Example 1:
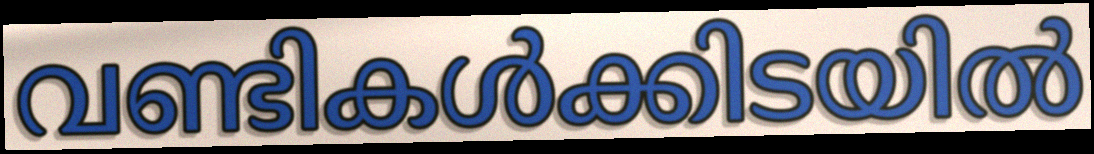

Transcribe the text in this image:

വണ്ടികൾക്കിടയിൽ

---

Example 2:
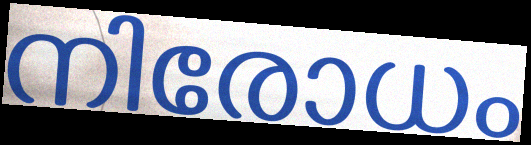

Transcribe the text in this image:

നിരോധം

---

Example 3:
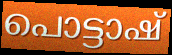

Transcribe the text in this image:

പൊട്ടാഷ്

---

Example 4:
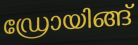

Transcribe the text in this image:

ഡ്രോയിങ്ങ്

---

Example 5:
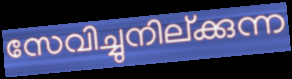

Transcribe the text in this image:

സേവിച്ചുനില്ക്കുന്ന